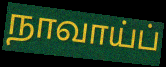
நாவாய்ப்